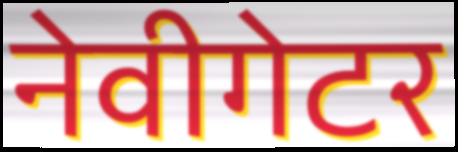
नेवीगेटर